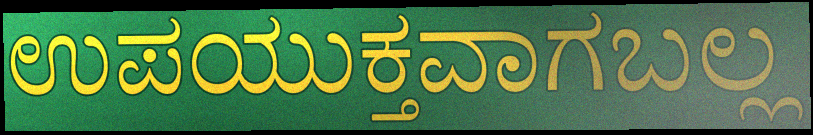
ಉಪಯುಕ್ತವಾಗಬಲ್ಲ